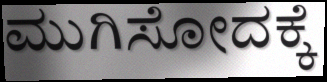
ಮುಗಿಸೋದಕ್ಕೆ